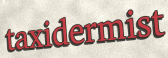
taxidermist